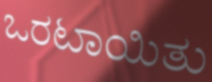
ಒರಟಾಯಿತು